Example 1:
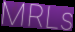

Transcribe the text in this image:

MRLs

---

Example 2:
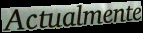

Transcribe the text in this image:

Actualmente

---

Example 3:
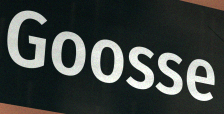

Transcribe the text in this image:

Goosse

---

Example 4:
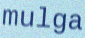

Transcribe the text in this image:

mulga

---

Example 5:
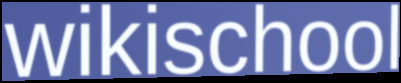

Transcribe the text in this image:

wikischool